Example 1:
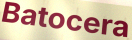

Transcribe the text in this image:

Batocera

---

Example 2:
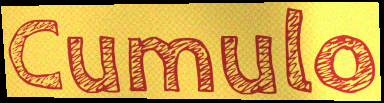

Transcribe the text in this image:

Cumulo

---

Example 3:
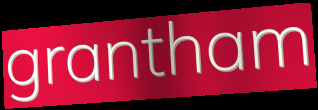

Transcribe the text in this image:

grantham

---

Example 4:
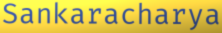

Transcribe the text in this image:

Sankaracharya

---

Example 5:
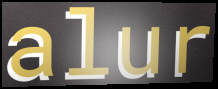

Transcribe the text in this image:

alur